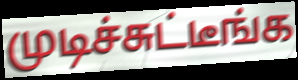
முடிச்சுட்டீங்க